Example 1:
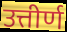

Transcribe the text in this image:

उत्तीर्ण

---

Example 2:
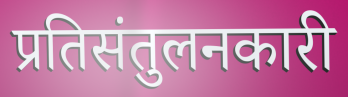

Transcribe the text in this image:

प्रतिसंतुलनकारी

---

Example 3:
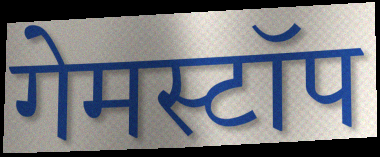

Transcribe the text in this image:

गेमस्टॉप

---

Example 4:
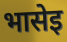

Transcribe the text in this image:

भासेइ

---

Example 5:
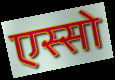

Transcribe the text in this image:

एस्सो